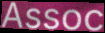
Assoc